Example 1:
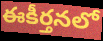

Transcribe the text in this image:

ఈకీర్తనలో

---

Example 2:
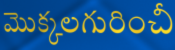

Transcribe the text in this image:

మొక్కలగురించీ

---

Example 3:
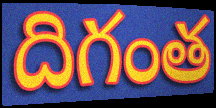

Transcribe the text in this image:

దిగంత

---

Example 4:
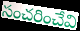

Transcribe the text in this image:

సంచరించేవి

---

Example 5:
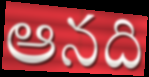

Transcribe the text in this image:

ఆనది